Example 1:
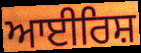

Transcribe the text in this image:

ਆਈਰਿਸ਼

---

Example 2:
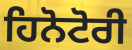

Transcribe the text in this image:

ਹਿਨੋਟੋਰੀ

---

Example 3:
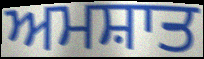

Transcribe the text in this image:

ਅਮਸ਼ਾਤ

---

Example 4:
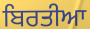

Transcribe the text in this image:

ਬਿਰਤੀਆ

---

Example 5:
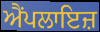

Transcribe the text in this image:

ਐਂਪਲਾਇਜ਼